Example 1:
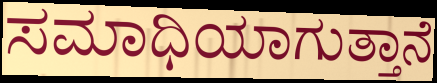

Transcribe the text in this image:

ಸಮಾಧಿಯಾಗುತ್ತಾನೆ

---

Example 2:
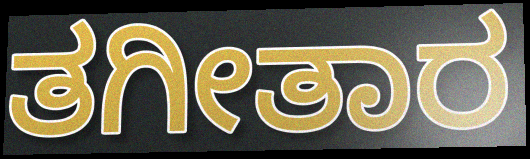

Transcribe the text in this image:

ತಗೀತಾರ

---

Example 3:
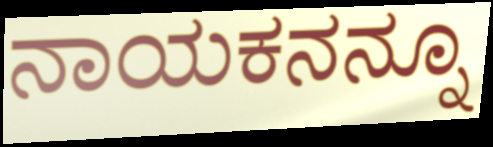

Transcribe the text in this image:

ನಾಯಕನನ್ನೂ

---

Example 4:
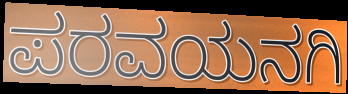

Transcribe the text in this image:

ಪರವಯನಗಿ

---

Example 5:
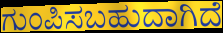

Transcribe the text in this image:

ಗುಂಪಿಸಬಹುದಾಗಿದೆ